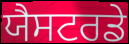
ਯੈਸਟਰਡੇ